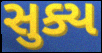
સુક્ય